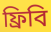
ফ্রিবি